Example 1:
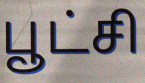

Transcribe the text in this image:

பூட்சி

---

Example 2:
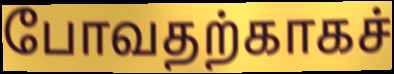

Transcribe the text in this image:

போவதற்காகச்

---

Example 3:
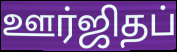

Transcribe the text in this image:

ஊர்ஜிதப்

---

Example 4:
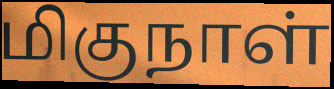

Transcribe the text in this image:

மிகுநாள்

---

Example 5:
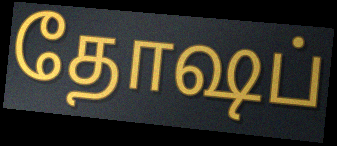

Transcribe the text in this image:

தோஷப்